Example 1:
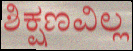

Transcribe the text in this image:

ಶಿಕ್ಷಣವಿಲ್ಲ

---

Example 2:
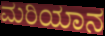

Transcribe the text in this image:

ಮರಿಯಾನ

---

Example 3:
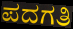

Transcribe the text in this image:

ಪದಗತಿ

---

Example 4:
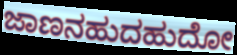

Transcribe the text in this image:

ಜಾಣನಹುದಹುದೋ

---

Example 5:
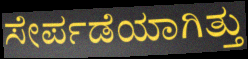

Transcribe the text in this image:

ಸೇರ್ಪಡೆಯಾಗಿತ್ತು